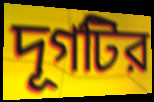
দূর্গটির